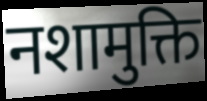
नशामुक्ति